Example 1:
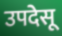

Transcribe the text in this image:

उपदेसू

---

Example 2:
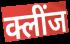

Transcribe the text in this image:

क्लींज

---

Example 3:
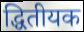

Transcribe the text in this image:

द्धितीयक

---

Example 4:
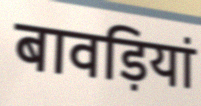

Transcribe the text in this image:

बावड़ियां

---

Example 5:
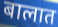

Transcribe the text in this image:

बालात